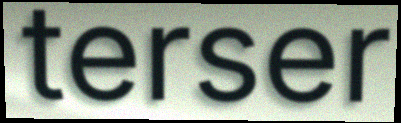
terser